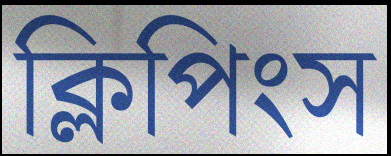
ক্লিপিংস